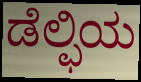
ಡೆಲ್ಫಿಯ